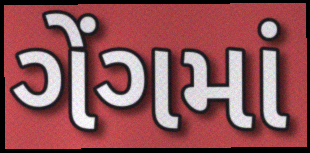
ગેંગમાં